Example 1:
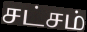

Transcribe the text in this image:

சட்சம்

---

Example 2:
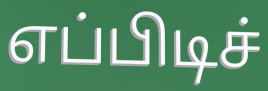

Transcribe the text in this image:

எப்பிடிச்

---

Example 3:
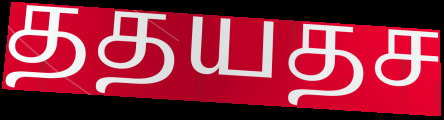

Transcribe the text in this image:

ததயதச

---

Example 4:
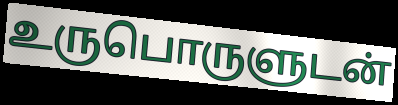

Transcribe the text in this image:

உருபொருளுடன்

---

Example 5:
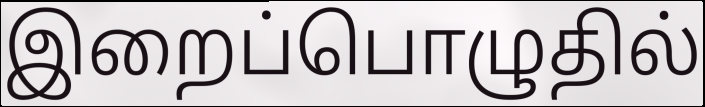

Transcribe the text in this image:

இறைப்பொழுதில்